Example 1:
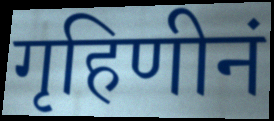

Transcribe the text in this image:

गृहिणीनं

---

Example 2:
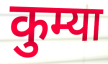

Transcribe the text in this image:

कुम्या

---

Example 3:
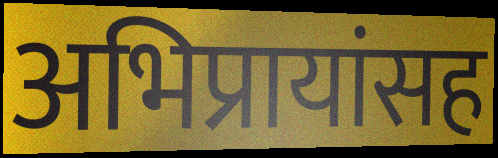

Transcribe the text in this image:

अभिप्रायांसह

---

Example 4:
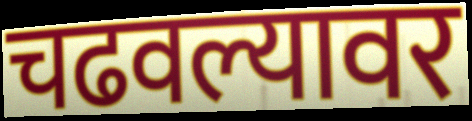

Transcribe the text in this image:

चढवल्यावर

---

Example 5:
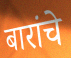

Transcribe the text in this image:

बारांचे